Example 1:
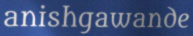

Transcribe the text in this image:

anishgawande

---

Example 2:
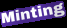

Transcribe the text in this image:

Minting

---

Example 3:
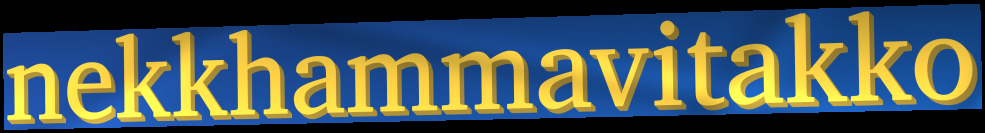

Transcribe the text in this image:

nekkhammavitakko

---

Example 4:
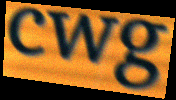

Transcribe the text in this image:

cwg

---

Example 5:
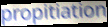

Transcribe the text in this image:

propitiation